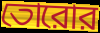
তোরোর